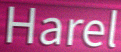
Harel